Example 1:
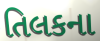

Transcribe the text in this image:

તિલકના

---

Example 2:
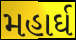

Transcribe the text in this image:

મહાર્ઘ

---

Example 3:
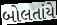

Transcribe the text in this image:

બોલતાંયે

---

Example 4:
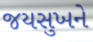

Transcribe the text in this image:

જયસુખને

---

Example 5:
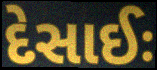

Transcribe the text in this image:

દેસાઈઃ